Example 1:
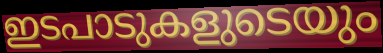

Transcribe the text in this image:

ഇടപാടുകളുടെയും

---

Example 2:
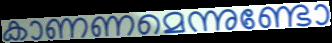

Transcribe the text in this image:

കാണണമെന്നുണ്ടോ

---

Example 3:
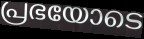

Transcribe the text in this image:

പ്രഭയോടെ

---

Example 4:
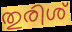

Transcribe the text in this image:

തുരിശ്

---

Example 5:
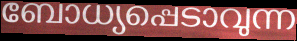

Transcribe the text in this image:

ബോധ്യപ്പെടാവുന്ന